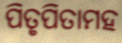
ପିତୃପିତାମହ